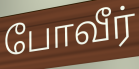
போவீர்